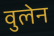
वुलेन